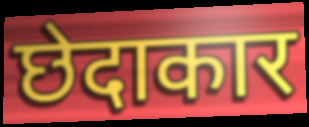
छेदाकार